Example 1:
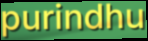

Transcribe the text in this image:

purindhu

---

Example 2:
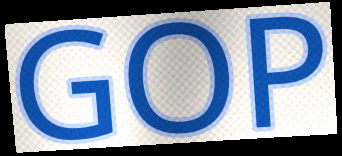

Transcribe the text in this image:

GOP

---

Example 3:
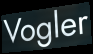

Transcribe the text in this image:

Vogler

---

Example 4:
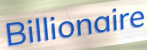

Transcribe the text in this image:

Billionaire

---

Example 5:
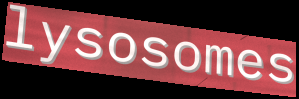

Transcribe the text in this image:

lysosomes